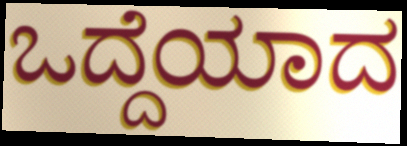
ಒದ್ದೆಯಾದ